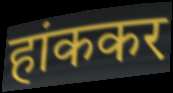
हांककर